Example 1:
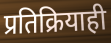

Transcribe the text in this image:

प्रतिक्रियाही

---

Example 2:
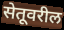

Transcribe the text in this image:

सेतूवरील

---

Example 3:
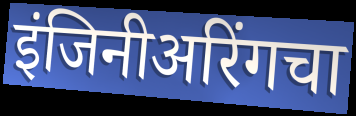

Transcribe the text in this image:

इंजिनीअरिंगचा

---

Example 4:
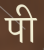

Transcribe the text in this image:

पी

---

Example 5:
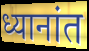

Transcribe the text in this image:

ध्यानांत